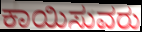
ಕಾಯಿಸುವರು